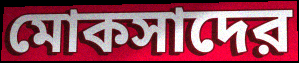
মোকসাদের